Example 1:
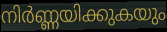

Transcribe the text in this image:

നിർണ്ണയിക്കുകയും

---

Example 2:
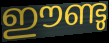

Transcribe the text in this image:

ഈണ്ടു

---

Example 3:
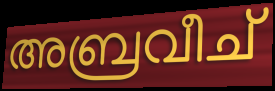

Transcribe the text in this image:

അബ്രവീച്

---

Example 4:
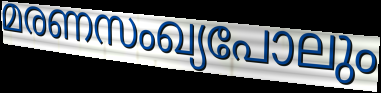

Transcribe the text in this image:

മരണസംഖ്യപോലും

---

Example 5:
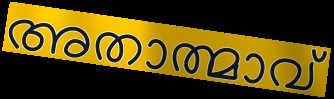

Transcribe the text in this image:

അതാത്മാവ്